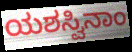
ಯಶಸ್ವಿನಾಂ